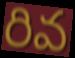
రివ